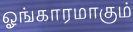
ஓங்காரமாகும்